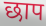
छाप